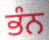
ਭੰਨ